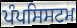
ਪੰਪਸਿਸਟਮ